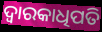
ଦ୍ୱାରକାଧିପତି